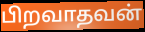
பிறவாதவன்